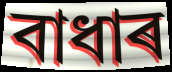
বাধাৰ